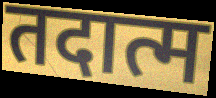
तदात्म